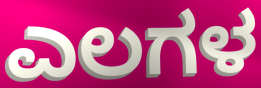
ಎಲಗಳ